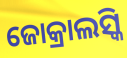
ଜୋକ୍ରାଲସ୍କି